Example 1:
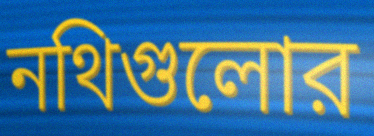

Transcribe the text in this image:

নথিগুলোর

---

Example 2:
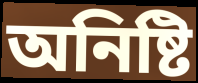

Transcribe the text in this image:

অনিষ্টি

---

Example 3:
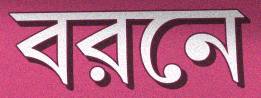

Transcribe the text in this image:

বরনে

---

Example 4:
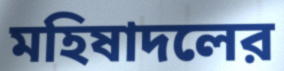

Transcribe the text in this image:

মহিষাদলের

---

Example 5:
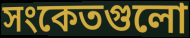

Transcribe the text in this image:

সংকেতগুলো